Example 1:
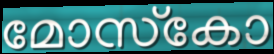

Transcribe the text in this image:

മോസ്‌കോ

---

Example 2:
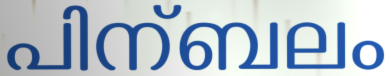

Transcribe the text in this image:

പിന്ബലം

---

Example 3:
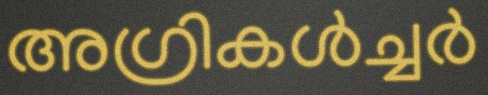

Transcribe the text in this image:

അഗ്രികൾച്ചർ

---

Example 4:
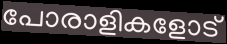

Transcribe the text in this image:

പോരാളികളോട്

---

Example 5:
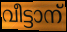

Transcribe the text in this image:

വീട്ടാന്